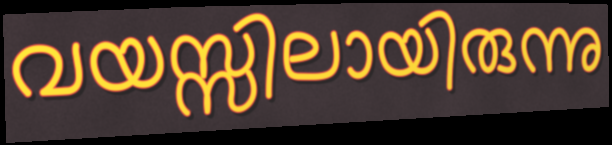
വയസ്സിലായിരുന്നു